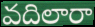
వదిలారా